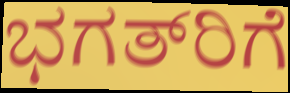
ಭಗತ್‍ರಿಗೆ